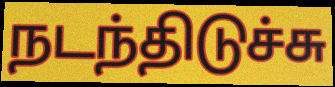
நடந்திடுச்சு